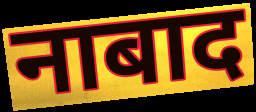
नाबाद